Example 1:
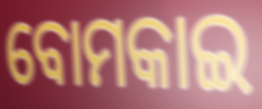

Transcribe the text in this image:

ବୋମକାଇ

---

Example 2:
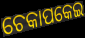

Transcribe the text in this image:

ଚେକାପକେଇ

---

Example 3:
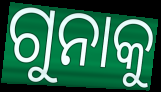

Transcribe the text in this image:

ଗୁନାକୁ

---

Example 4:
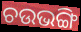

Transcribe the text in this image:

ଚଉଭଙ୍ଗି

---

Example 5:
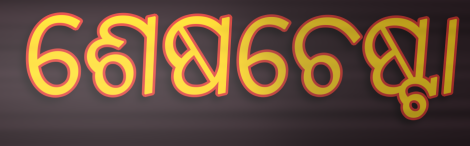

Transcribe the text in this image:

ଶେଷଚେଷ୍ଟା